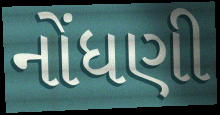
નોંધણી